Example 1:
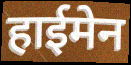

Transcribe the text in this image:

हाईमेन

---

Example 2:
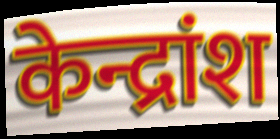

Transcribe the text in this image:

केन्द्रांश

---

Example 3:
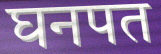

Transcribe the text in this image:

घनपत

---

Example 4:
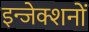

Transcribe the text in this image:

इन्जेक्शनों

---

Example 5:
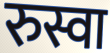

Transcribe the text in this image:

रुस्वा